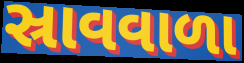
સ્રાવવાળા